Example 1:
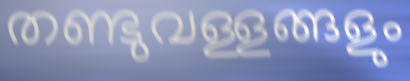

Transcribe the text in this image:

തണ്ടുവള്ളങ്ങളും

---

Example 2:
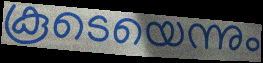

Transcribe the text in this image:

കൂടെയെന്നും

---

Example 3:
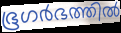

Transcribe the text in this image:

ഭൂഗർഭത്തിൽ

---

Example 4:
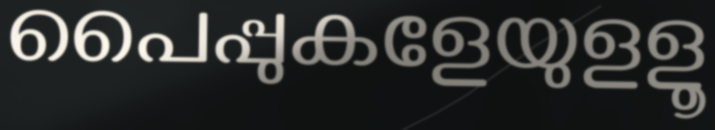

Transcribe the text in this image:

പൈപ്പുകളേയുളളൂ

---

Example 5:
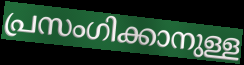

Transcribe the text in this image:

പ്രസംഗിക്കാനുള്ള